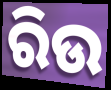
ରିଉ